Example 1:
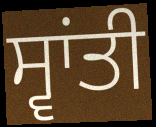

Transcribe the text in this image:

ਸ੍ਵਾਂਤੀ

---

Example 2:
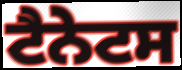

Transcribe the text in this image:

ਟੈਨੇਟਸ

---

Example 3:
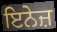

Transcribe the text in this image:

ਇਨੇਜ਼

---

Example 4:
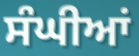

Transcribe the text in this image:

ਸੰਘੀਆਂ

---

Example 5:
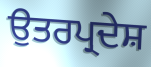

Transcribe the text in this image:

ਉਤਰਪ੍ਰਦੇਸ਼